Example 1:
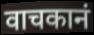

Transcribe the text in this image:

वाचकानं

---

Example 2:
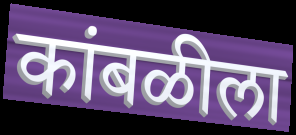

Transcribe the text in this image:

कांबळीला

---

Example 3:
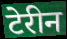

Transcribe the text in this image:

टेरीन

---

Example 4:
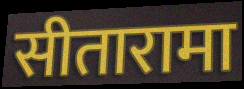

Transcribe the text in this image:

सीतारामा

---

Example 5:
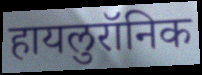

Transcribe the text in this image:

हायलुरॉनिक